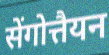
सेंगोत्तैयन